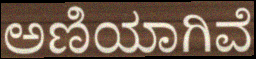
ಅಣಿಯಾಗಿವೆ